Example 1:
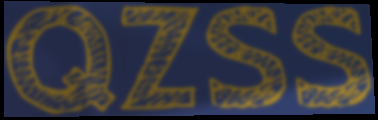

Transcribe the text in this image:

QZSS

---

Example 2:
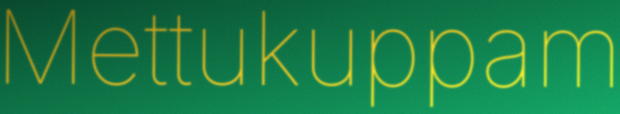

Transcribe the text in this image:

Mettukuppam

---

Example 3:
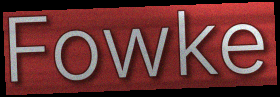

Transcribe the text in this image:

Fowke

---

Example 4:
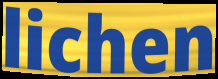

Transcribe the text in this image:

lichen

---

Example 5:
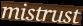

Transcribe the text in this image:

mistrust